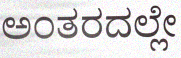
ಅಂತರದಲ್ಲೇ